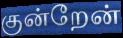
குன்றேன்